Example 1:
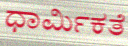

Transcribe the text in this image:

ಧಾರ್ಮಿಕತೆ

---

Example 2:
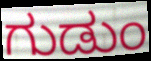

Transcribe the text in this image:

ಗುಡುಂ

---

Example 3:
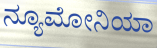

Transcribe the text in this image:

ನ್ಯೂಮೋನಿಯಾ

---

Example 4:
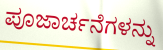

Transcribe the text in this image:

ಪೂಜಾರ್ಚನೆಗಳನ್ನು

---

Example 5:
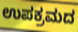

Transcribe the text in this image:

ಉಪಕ್ರಮದ